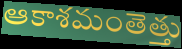
ఆకాశమంతెత్తు